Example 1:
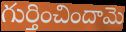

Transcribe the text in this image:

గుర్తించిందామె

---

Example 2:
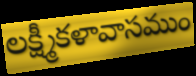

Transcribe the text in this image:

లక్ష్మీకళావాసముం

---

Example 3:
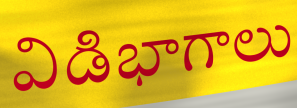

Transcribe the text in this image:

విడిభాగాలు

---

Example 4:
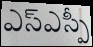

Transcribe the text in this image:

ఎస్ఎస్పీ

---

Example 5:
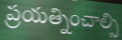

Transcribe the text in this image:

ప్రయత్నించాల్సి